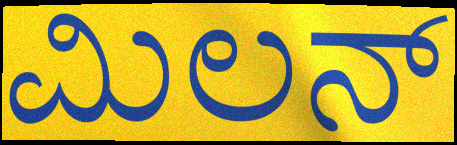
ಮಿಲನ್